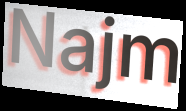
Najm